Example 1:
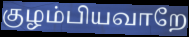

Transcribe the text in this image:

குழம்பியவாறே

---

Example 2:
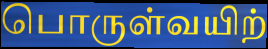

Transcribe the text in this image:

பொருள்வயிற்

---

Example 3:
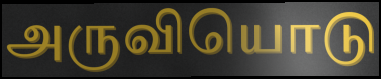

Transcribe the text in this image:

அருவியொடு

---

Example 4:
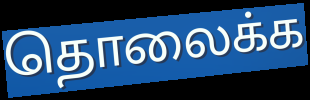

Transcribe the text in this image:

தொலைக்க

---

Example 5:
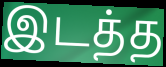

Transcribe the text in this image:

இடத்த